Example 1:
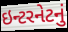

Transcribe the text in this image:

ઇન્ટરનેટનું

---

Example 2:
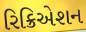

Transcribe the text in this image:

રિક્રિએશન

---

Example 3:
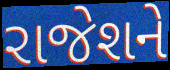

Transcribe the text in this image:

રાજેશને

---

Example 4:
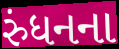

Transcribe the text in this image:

રુંધનના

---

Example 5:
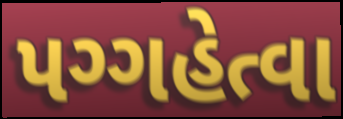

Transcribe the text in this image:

પગ્ગહેત્વા